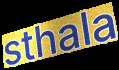
sthala